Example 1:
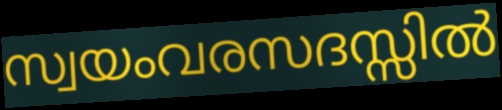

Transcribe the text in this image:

സ്വയംവരസദസ്സിൽ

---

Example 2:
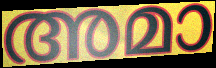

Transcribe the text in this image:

അമാ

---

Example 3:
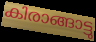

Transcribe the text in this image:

കിരാങ്ങാട്ടു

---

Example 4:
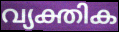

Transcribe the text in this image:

വ്യക്തിക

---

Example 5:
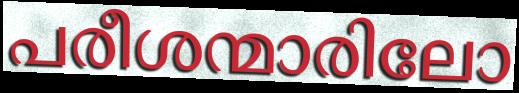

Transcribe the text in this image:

പരീശന്മാരിലോ